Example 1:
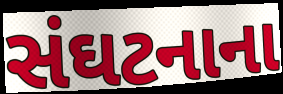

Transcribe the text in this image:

સંઘટનાના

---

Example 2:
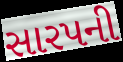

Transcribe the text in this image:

સારપની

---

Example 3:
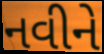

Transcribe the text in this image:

નવીને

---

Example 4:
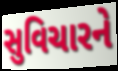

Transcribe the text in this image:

સુવિચારને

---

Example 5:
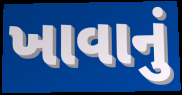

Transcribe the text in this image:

ખાવાનું